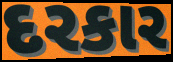
દરકાર